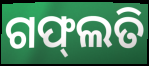
ଗଫ୍‌ଲତି